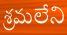
శ్రమలేని